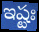
ఇష్టః